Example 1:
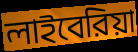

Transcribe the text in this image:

লাইবেরিয়া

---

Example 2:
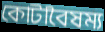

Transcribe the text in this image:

কোটাবৈষম্য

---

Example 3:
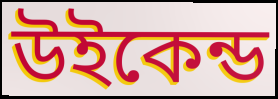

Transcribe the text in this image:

উইকেন্ড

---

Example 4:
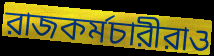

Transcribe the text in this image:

রাজকর্মচারীরাও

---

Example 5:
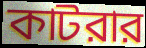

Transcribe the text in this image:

কাটরার